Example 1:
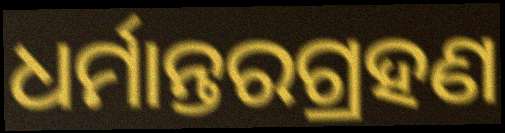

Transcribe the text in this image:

ଧର୍ମାନ୍ତରଗ୍ରହଣ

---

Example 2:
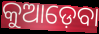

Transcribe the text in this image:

କୁଆଡ଼େବା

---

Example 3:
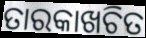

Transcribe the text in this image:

ତାରକାଖଚିତ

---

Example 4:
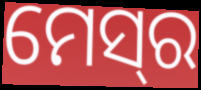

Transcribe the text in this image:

ମେସ୍‌ର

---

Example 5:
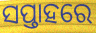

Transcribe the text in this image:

ସପ୍ତାହରେ